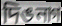
দিঙনাগ